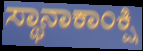
ಸ್ಥಾನಾಕಾಂಕ್ಷಿ